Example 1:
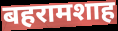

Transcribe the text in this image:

बहरामशाह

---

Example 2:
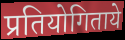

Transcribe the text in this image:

प्रतियोगिताये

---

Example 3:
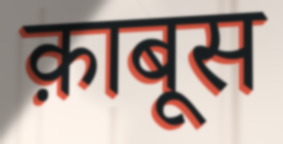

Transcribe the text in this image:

क़ाबूस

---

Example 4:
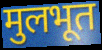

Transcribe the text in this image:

मुलभूत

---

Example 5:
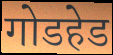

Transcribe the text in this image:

गोडहेड